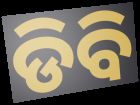
ଡିବି